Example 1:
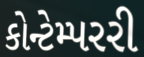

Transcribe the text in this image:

કોન્ટેમ્પરરી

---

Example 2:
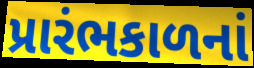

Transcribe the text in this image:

પ્રારંભકાળનાં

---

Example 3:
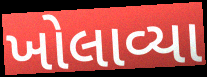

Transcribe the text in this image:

ખોલાવ્યા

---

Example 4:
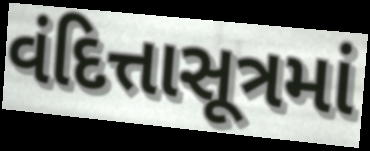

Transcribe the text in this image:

વંદિત્તાસૂત્રમાં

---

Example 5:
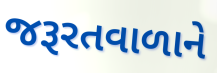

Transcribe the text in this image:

જરૂરતવાળાને